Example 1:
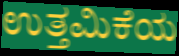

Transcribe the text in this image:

ಉತ್ತಮಿಕೆಯ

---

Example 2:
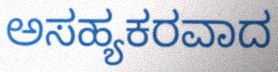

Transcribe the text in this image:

ಅಸಹ್ಯಕರವಾದ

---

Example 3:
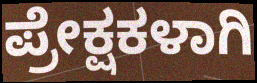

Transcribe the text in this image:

ಪ್ರೇಕ್ಷಕಳಾಗಿ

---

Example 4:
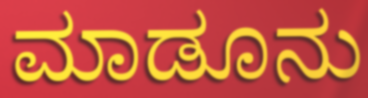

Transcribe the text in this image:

ಮಾಡೂನು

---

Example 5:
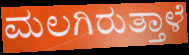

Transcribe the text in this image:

ಮಲಗಿರುತ್ತಾಳೆ